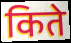
किते